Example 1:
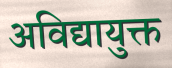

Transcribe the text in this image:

अविद्यायुक्त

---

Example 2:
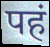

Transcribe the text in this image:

पहं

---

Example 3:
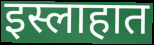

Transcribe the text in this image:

इस्लाहात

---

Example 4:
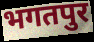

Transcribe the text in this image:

भगतपुर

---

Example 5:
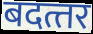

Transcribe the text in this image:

बदत्‍तर